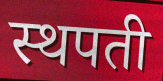
स्थपती